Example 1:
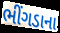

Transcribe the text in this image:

ભીંગડાના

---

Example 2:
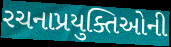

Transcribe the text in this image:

રચનાપ્રયુક્તિઓની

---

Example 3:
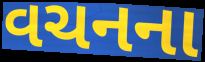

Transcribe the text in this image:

વચનના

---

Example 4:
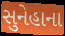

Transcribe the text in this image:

સુનેહાના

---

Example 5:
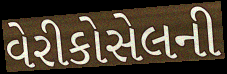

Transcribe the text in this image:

વેરીકોસેલની